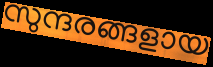
സുന്ദരങ്ങളായ